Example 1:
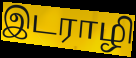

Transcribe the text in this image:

இடராழி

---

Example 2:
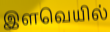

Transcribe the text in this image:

இளவெயில்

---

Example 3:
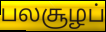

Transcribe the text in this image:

பலசூழப்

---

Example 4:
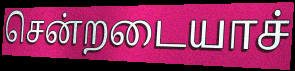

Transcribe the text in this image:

சென்றடையாச்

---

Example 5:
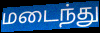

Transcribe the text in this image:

மடைந்து